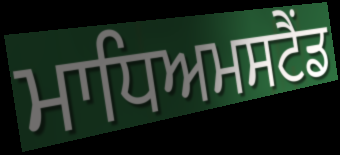
ਮਾਧਿਅਮਸਟੈਂਡ